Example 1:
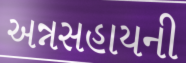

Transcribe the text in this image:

અન્નસહાયની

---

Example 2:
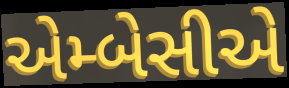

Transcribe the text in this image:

એમ્બેસીએ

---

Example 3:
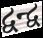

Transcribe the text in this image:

દ્વન્દ્વ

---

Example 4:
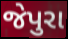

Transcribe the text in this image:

જેપુરા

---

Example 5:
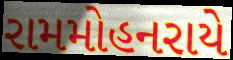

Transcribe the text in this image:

રામમોહનરાયે